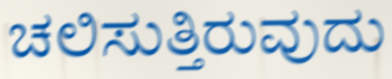
ಚಲಿಸುತ್ತಿರುವುದು